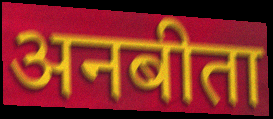
अनबीता